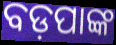
ବଡ଼ପାଙ୍କ